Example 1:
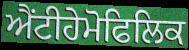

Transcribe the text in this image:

ਐਂਟੀਹੇਮੋਫਿਲਿਕ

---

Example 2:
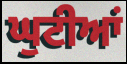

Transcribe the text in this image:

ਘੁਟੀਆਂ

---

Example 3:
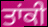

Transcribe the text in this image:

ਤਾਂਕੀ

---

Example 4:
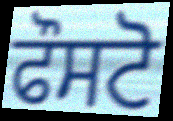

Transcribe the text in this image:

ਫੌਸਟੋ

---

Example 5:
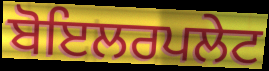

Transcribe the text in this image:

ਬੋਇਲਰਪਲੇਟ